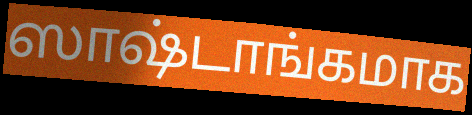
ஸாஷ்டாங்கமாக